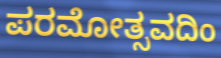
ಪರಮೋತ್ಸವದಿಂ